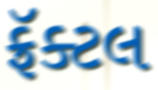
ફ્રૅક્ટલ